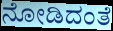
ನೋಡಿದಂತೆ